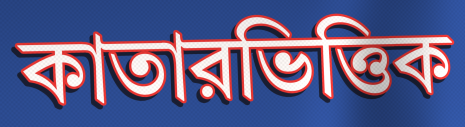
কাতারভিত্তিক